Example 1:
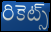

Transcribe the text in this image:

రికెట్స్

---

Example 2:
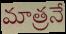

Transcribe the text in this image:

మాత్రనే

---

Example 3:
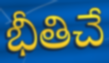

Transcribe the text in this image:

భీతిచే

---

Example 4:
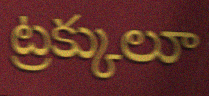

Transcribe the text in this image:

ట్రక్కులూ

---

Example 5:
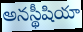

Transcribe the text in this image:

అనస్థీషియా